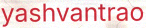
yashvantrao